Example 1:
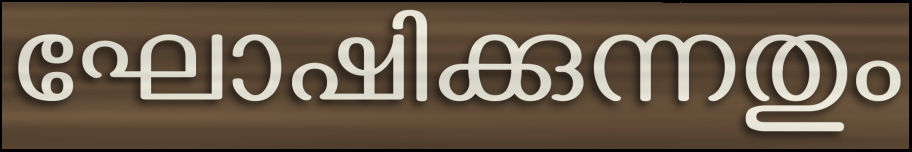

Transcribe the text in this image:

ഘോഷിക്കുന്നതും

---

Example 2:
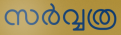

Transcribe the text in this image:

സർവ്വത്ര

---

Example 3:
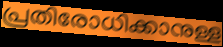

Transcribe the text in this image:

പ്രതിരോധിക്കാനുള്ള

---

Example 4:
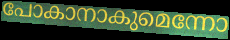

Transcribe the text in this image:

പോകാനാകുമെന്നോ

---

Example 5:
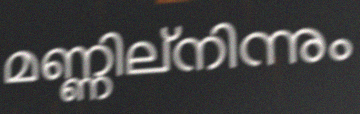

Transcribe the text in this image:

മണ്ണില്നിന്നും